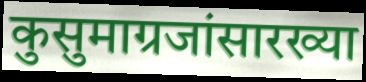
कुसुमाग्रजांसारख्या